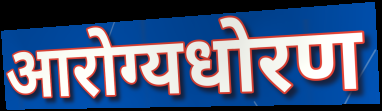
आरोग्यधोरण